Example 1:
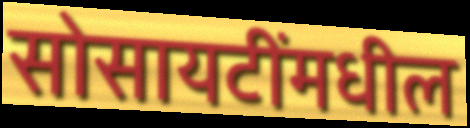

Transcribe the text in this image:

सोसायटींमधील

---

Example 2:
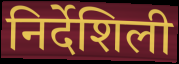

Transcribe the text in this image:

निर्देशिली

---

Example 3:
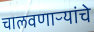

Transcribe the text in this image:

चालवणाऱ्यांचे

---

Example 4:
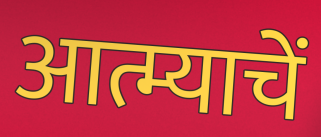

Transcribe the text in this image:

आत्म्याचें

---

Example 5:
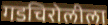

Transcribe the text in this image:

गडचिरोलीला